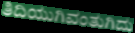
ತಿದಿಯುಗಿವಂತುಗಿದು